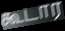
கூடார